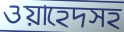
ওয়াহেদসহ